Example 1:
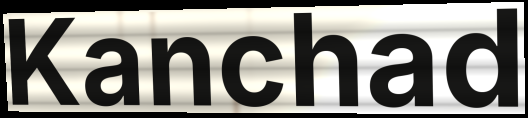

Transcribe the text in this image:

Kanchad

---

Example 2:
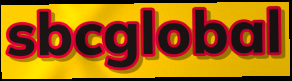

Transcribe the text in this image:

sbcglobal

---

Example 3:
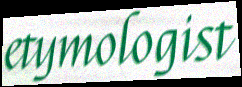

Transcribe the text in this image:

etymologist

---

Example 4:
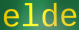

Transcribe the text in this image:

elde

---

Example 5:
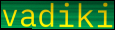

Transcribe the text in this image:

vadiki